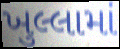
ખુલ્લામાં